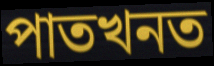
পাতখনত